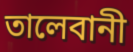
তালেবানী